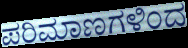
ಪರಿಮಾಣಗಳಿಂದ